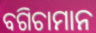
ବଗିଚାମାନ